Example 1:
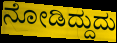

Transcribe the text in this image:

ನೋಡಿದ್ದುದು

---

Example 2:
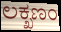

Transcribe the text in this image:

ಲಕ್ಖಣಂ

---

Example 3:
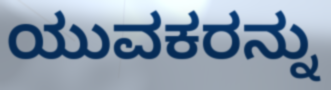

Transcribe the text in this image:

ಯುವಕರನ್ನು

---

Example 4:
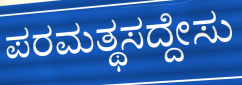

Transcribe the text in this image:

ಪರಮತ್ಥಸದ್ದೇಸು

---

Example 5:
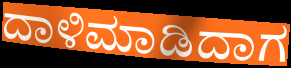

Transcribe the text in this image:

ದಾಳಿಮಾಡಿದಾಗ